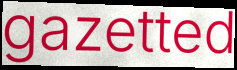
gazetted